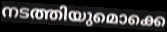
നടത്തിയുമൊക്കെ